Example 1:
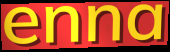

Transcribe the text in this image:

enna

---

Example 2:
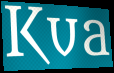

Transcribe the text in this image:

Kua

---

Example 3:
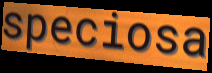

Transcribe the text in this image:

speciosa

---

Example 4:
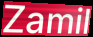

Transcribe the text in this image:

Zamil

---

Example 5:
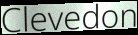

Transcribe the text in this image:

Clevedon